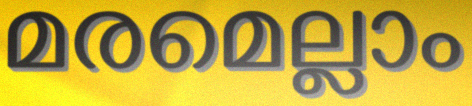
മരമെല്ലാം